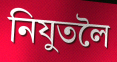
নিযুতলৈ